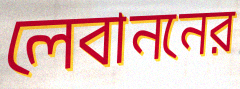
লেবাননের